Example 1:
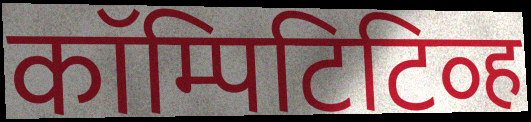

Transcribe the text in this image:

कॉम्पिटिटिव्ह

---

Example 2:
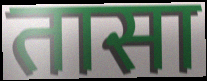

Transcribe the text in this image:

तासा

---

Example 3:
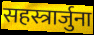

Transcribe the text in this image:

सहस्त्रार्जुना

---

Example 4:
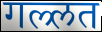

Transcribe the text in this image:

गल्लत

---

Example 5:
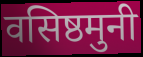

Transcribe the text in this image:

वसिष्ठमुनी